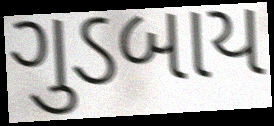
ગુડબાય